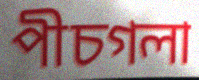
পীচগলা